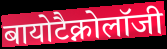
बायोटैक्नोलॉजी